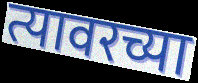
त्यावरच्या